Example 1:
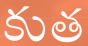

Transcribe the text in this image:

కుత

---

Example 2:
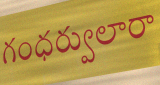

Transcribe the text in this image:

గంధర్వులారా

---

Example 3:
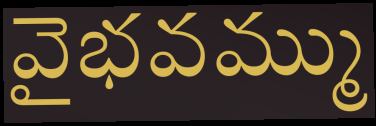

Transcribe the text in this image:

వైభవమ్ము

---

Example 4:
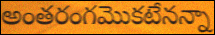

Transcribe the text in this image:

అంతరంగమొకటేనన్నా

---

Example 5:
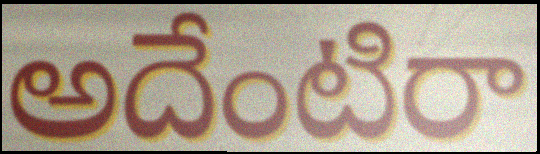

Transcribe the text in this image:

అదేంటిరా